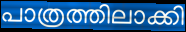
പാത്രത്തിലാക്കി